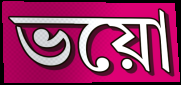
ভয়ো